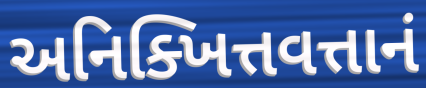
અનિક્ખિત્તવત્તાનં